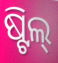
ଷ୍ଟିଲ୍